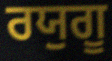
ਰਯੁਗੂ